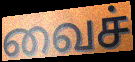
வைச்